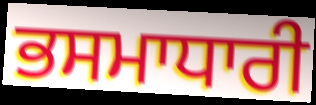
ਭਸਮਾਧਾਰੀ